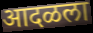
आदळला